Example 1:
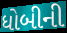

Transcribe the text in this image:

ધોબીની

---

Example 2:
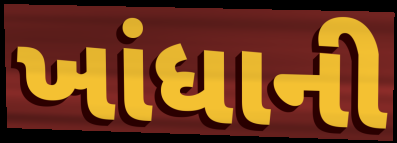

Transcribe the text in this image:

ખાંધાની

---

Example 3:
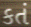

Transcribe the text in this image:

કતં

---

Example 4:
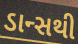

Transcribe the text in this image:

ડાન્સથી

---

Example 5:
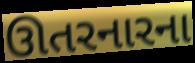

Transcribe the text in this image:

ઊતરનારના